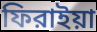
ফিরাইয়া